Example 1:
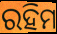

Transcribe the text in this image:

ରହିମ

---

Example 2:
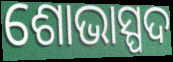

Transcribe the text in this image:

ଶୋଭାସ୍ପଦ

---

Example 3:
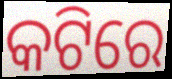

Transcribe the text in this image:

କଟିରେ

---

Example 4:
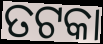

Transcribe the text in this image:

ତଟକା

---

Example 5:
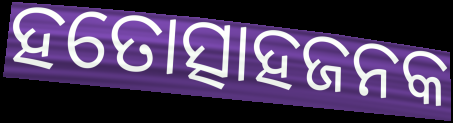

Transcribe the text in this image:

ହତୋତ୍ସାହଜନକ